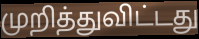
முறித்துவிட்டது